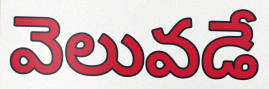
వెలువడే